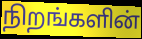
நிறங்களின்